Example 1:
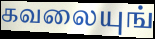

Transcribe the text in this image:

கவலையுங்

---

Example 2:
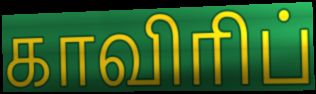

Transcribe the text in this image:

காவிரிப்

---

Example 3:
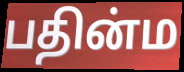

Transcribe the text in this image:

பதின்ம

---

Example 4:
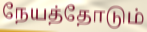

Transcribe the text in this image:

நேயத்தோடும்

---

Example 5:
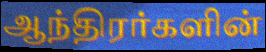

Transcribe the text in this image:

ஆந்திரர்களின்